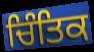
ਚਿੰਤਿਕ